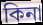
কিনা